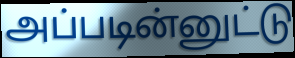
அப்படின்னுட்டு